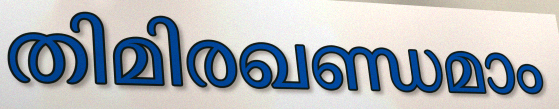
തിമിരഖണ്ഡമാം